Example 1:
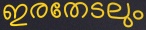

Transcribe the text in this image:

ഇരതേടലും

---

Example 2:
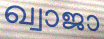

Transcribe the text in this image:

ഖ്വാജാ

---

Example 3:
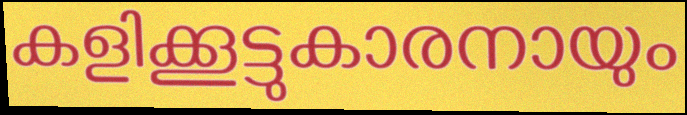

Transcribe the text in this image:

കളിക്കൂട്ടുകാരനായും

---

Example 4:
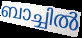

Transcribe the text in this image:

ബാച്ചിൽ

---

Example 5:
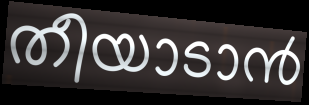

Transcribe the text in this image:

തീയാടാൻ